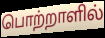
பொற்றாளில்